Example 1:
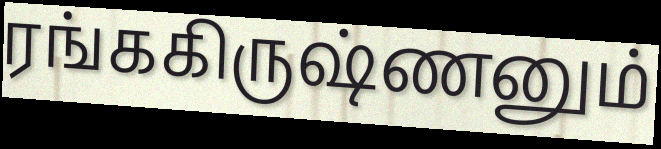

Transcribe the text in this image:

ரங்ககிருஷ்ணனும்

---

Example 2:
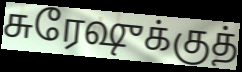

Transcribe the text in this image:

சுரேஷுக்குத்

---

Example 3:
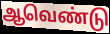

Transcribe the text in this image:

ஆவெண்டு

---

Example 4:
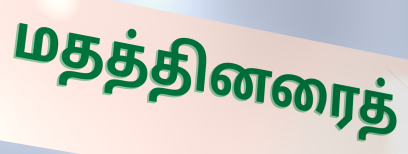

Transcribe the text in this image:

மதத்தினரைத்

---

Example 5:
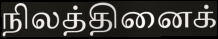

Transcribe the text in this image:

நிலத்தினைக்